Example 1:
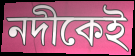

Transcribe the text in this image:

নদীকেই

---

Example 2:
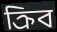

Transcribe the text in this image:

ক্রিব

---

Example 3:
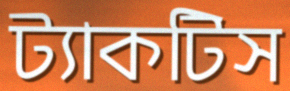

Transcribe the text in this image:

ট্যাকটিস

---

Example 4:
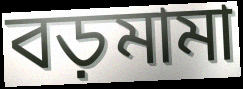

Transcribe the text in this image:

বড়মামা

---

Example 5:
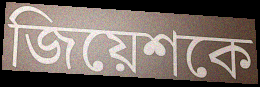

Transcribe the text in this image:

জিয়েশকে